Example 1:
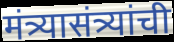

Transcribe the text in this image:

मंत्र्यासंत्र्यांची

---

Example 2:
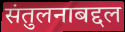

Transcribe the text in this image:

संतुलनाबद्दल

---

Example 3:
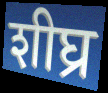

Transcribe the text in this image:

शीघ्र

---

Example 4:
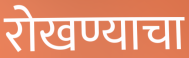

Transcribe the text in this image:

रोखण्याचा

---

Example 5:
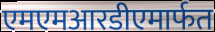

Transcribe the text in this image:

एमएमआरडीएमार्फत